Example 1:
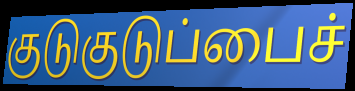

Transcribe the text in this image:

குடுகுடுப்பைச்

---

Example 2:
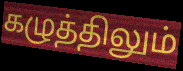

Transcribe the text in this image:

கழுத்திலும்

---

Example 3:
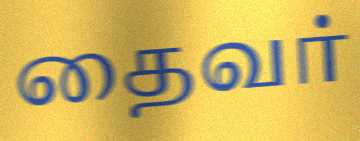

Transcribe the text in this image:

தைவர்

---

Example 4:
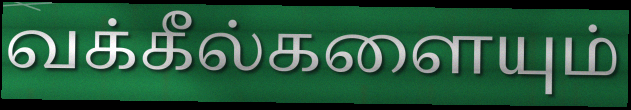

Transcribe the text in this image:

வக்கீல்களையும்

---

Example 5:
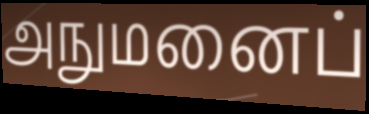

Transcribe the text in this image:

அநுமனைப்